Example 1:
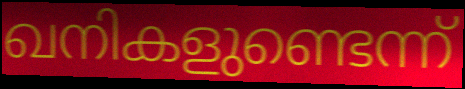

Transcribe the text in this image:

ഖനികളുണ്ടെന്ന്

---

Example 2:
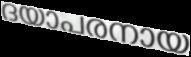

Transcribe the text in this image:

ദയാപരനായ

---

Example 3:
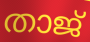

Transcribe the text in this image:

താജ്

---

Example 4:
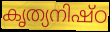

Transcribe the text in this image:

കൃത്യനിഷ്ഠ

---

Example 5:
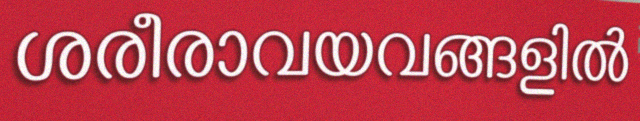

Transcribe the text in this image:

ശരീരാവയവങ്ങളിൽ